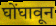
घोंघावून